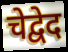
चेद्वेद